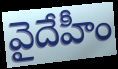
వైదేహీం